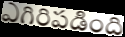
ఎగిరిపడింది